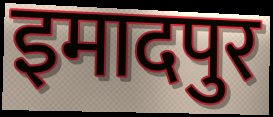
इमादपुर